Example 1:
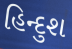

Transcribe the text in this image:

હિન્દુશ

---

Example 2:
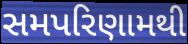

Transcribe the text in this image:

સમપરિણામથી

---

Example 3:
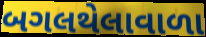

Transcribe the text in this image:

બગલથેલાવાળા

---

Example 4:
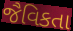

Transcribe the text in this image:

જૈવિકતા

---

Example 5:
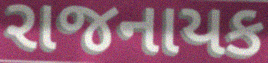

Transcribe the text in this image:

રાજનાયક